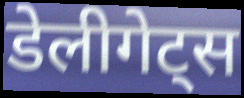
डेलीगेट्स